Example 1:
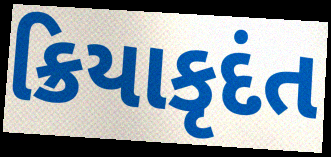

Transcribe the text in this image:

ક્રિયાકૃદંત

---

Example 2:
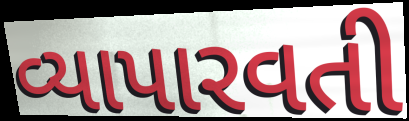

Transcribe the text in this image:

વ્યાપારવતી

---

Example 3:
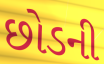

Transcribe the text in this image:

છોડની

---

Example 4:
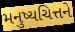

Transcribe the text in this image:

મનુષ્યચિત્તને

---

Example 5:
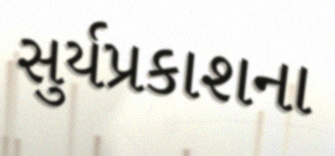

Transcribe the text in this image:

સુર્યપ્રકાશના